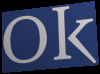
Ok